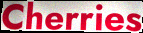
Cherries